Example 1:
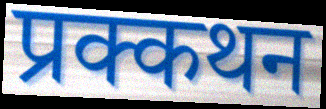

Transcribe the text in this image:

प्रक्कथन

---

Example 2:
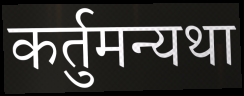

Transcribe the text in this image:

कर्तुमन्यथा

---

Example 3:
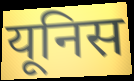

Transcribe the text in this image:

यूनिस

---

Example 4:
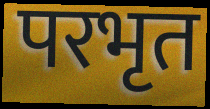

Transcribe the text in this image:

परभृत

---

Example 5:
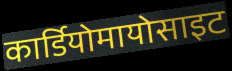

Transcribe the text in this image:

कार्डियोमायोसाइट